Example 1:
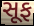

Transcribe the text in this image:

સૂફ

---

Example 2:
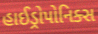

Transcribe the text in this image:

હાઈડ્રોપોનિક્સ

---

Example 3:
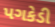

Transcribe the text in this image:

પગકેડી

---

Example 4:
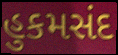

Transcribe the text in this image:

હુકમસંદ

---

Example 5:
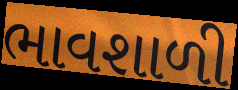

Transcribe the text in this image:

ભાવશાળી